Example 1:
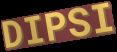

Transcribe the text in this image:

DIPSI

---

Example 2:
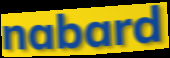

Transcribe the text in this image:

nabard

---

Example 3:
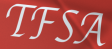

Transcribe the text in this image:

TFSA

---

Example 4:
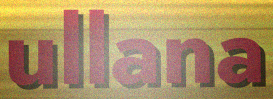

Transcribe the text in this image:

ullana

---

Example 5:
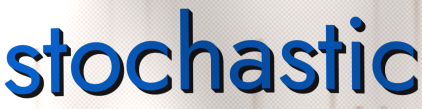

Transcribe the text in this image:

stochastic